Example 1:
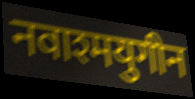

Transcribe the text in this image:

नवाश्मयुगीन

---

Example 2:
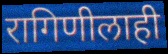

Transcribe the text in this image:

रागिणीलाही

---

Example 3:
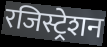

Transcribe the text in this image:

रजिस्ट्रेशन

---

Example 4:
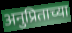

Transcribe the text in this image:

अनुप्रिताच्या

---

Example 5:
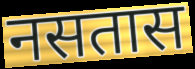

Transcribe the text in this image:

नसतास